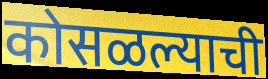
कोसळल्याची